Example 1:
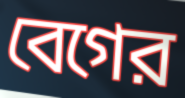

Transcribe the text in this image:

বেগের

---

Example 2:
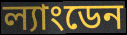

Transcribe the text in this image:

ল্যাংডেন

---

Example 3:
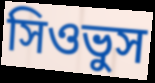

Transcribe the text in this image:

সিওভুস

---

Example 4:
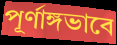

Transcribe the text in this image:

পূর্ণাঙ্গভাবে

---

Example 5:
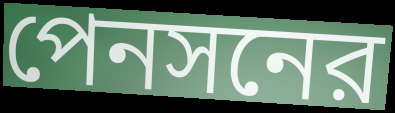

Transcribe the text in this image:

পেনসনের